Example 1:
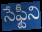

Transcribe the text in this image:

సేఫ్టీని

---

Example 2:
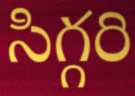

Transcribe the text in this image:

సిగ్గరి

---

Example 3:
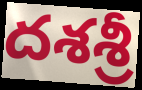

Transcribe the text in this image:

దశశ్రీ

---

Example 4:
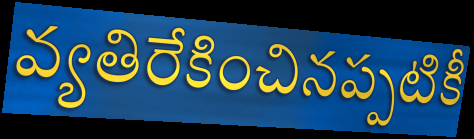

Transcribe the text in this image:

వ్యతిరేకించినప్పటికీ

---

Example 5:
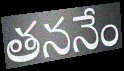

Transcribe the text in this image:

తననేం